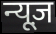
न्‍यूज़